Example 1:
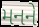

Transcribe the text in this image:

મનને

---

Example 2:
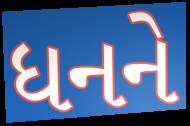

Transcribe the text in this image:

ધનને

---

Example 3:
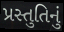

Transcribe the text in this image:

પ્રસ્તુતિનું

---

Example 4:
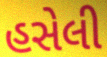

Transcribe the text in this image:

હસેલી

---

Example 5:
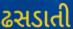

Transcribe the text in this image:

ઢસડાતી